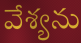
వేశ్యను